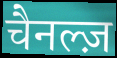
चैनल्ज़